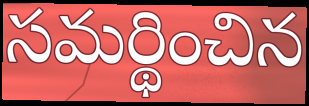
సమర్థించిన